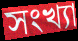
সংখ্যা